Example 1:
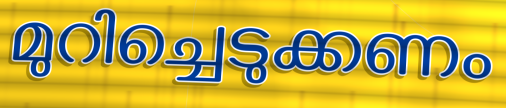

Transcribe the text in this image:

മുറിച്ചെടുക്കണം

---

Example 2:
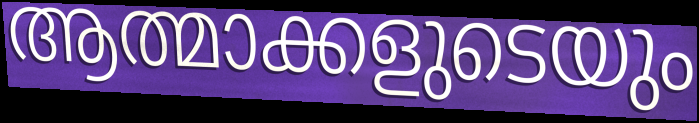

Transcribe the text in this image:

ആത്മാക്കളുടെയും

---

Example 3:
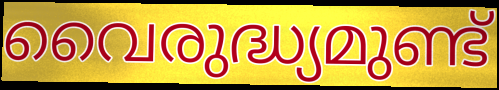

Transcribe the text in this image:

വൈരുദ്ധ്യമുണ്ട്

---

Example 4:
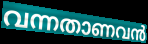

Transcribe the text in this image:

വന്നതാണവൻ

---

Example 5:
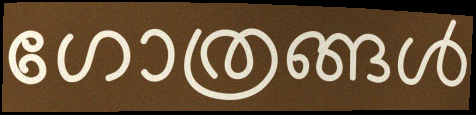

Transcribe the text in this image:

ഗോത്രങ്ങൾ